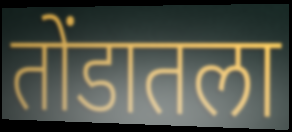
तोंडातला